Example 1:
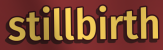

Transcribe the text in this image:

stillbirth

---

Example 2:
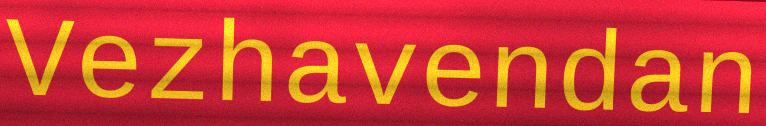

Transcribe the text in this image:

Vezhavendan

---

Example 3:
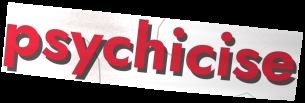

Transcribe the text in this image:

psychicise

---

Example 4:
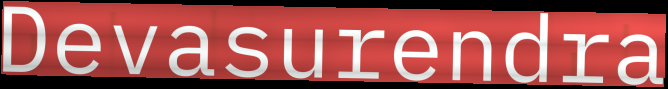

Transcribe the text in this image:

Devasurendra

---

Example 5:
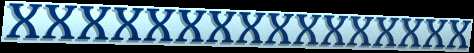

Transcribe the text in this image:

xxxxxxxxxxxxxxxx